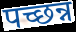
पच्छन्न